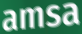
amsa